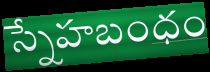
స్నేహబంధం